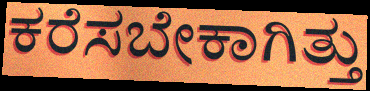
ಕರೆಸಬೇಕಾಗಿತ್ತು